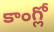
కాంగ్లో